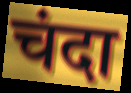
चंदा